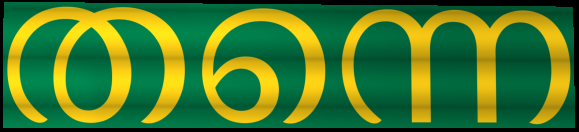
തന്നെ